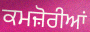
ਕਮਜ਼ੋਰੀਆਂ